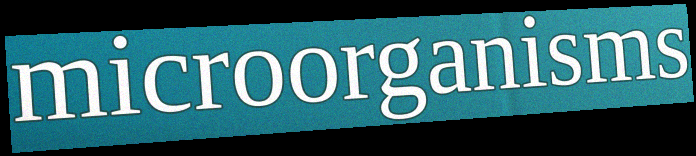
microorganisms